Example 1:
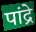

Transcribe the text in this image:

पांद्रे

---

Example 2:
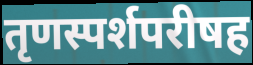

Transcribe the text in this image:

तृणस्पर्शपरीषह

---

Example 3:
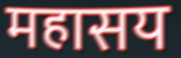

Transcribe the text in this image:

महासय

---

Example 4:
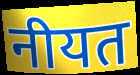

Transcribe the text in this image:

नीयत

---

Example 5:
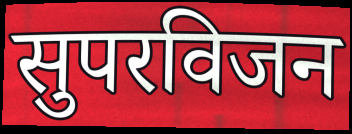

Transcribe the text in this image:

सुपरविजन